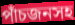
পাঁচজনসহ